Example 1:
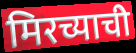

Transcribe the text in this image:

मिरच्याची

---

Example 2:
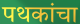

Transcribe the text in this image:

पथकांचा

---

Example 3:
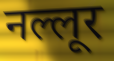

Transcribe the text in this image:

नल्लूर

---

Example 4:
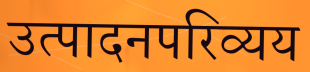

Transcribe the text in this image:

उत्पादनपरिव्यय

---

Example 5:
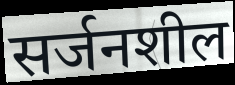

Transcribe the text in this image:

सर्जनशील